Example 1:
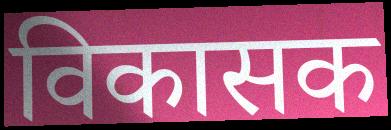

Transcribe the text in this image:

विकासक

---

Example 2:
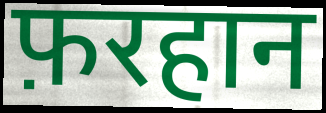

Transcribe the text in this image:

फ़रहान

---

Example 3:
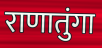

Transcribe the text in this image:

राणातुंगा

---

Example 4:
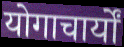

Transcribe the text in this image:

योगाचार्यों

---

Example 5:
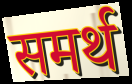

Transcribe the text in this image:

समर्थ